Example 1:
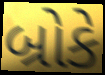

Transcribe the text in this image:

બ્રોકે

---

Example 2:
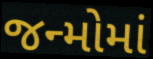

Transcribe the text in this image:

જન્મોમાં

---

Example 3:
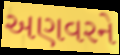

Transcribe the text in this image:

અણવરને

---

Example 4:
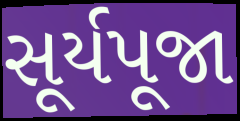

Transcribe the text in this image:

સૂર્યપૂજા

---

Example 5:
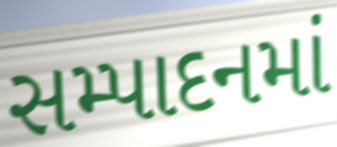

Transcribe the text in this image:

સમ્પાદનમાં